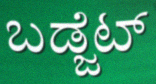
ಬಡ್ಜೆಟ್